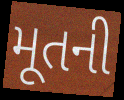
મૂતની